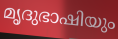
മൃദുഭാഷിയും